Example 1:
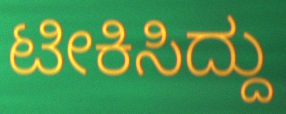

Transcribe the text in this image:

ಟೀಕಿಸಿದ್ದು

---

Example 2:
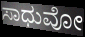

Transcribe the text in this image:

ಸಾಧುವೋ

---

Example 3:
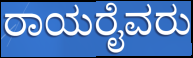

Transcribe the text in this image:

ರಾಯರೈವರು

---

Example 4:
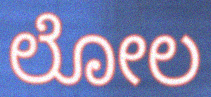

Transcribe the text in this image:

ಲೋಲ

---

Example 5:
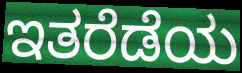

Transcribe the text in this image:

ಇತರೆಡೆಯ